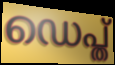
ഡെപ്ത്